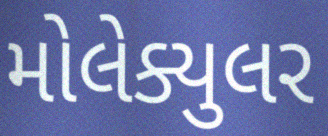
મોલેક્યુલર